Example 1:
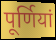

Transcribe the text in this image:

पूर्णियां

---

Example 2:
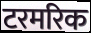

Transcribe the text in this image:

टरमरिक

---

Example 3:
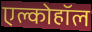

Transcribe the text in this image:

एल्कोहॉल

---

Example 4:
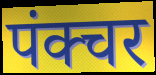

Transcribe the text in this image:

पंक्चर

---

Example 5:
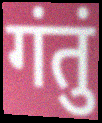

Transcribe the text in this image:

गंतुं